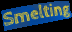
Smelting